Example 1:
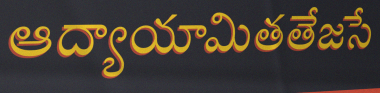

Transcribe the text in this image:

ఆద్యాయామితతేజసే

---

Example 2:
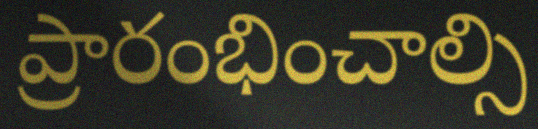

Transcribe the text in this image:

ప్రారంభించాల్సి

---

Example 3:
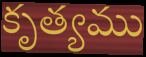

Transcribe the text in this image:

కృత్యము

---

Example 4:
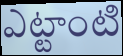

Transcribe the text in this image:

ఎట్టాంటి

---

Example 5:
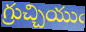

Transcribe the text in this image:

గ్రుచ్చియుఁ